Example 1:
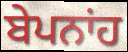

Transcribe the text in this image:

ਬੇਪਨਾਂਹ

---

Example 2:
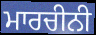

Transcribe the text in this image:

ਮਾਰਚੀਨੀ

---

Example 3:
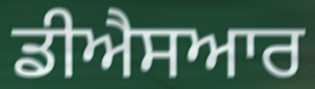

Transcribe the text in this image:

ਡੀਐਸਆਰ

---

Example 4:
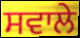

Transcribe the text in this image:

ਸਵਾਲੇ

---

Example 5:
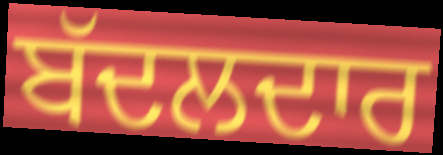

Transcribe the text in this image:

ਬੱਦਲਦਾਰ